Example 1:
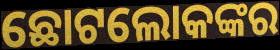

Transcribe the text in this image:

ଛୋଟଲୋକଙ୍କର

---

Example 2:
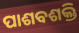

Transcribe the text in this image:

ପାଶବଶକ୍ତି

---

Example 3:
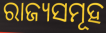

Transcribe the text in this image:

ରାଜ୍ୟସମୂହ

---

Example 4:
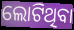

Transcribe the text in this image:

ଲୋଟିଥିବା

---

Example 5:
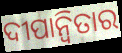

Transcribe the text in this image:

ଦୀପାନ୍ୱିତାର